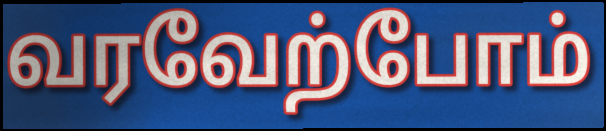
வரவேற்போம்